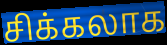
சிக்கலாக